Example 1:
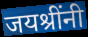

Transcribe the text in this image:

जयश्रींनी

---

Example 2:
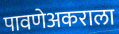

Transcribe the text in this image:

पावणेअकराला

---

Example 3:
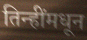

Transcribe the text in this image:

तिन्हींमधून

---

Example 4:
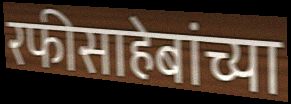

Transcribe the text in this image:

रफीसाहेबांच्या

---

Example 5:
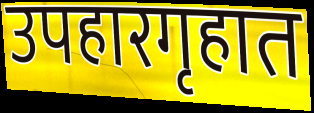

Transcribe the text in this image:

उपहारगृहात